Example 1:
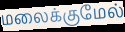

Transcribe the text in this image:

மலைக்குமேல்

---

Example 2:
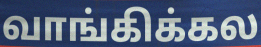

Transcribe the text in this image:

வாங்கிக்கல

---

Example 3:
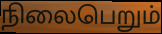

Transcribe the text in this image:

நிலைபெறும்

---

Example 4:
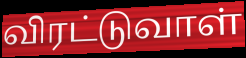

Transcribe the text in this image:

விரட்டுவாள்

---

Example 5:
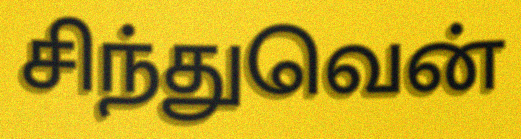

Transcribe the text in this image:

சிந்துவென்